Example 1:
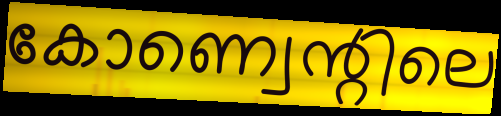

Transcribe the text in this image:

കോണ്വെന്റിലെ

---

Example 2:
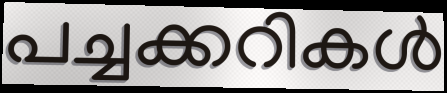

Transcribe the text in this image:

പച്ചക്കറികൾ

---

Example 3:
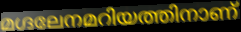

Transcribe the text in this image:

മഗ്ദലേനമറിയത്തിനാണ്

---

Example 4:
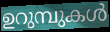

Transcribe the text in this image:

ഉറുമ്പുകൾ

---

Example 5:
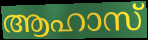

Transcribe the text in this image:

ആഹാസ്